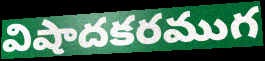
విషాదకరముగ